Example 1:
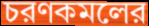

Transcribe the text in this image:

চরণকমলের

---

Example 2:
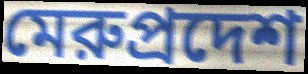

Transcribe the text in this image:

মেরুপ্রদেশ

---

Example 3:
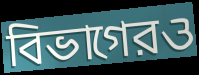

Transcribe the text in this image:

বিভাগেরও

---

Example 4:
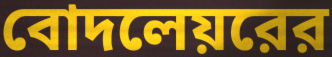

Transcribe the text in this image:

বোদলেয়রের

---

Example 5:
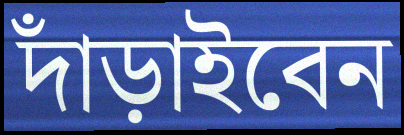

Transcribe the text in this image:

দাঁড়াইবেন